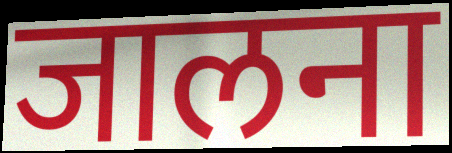
जालना